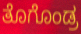
ತೊಗೊಂಡ್ರ